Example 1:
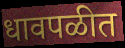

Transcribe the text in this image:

धावपळीत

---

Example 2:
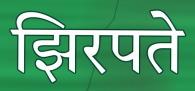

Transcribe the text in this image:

झिरपते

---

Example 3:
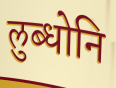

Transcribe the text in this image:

लुब्धोनि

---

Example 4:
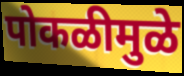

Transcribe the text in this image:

पोकळीमुळे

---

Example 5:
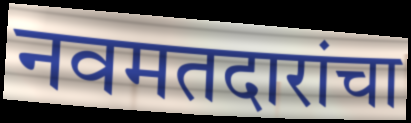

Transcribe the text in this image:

नवमतदारांचा